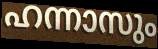
ഹന്നാസും